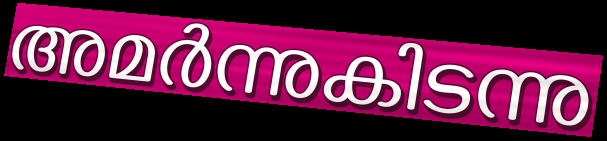
അമർന്നുകിടന്നു